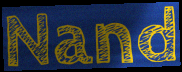
Nand